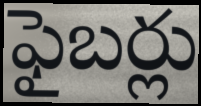
ఫైబర్లు